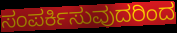
ಸಂಪರ್ಕಿಸುವುದರಿಂದ